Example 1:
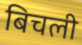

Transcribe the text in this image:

बिचली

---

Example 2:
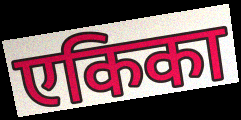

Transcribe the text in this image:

एकिका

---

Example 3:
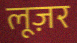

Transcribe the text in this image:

लूज़र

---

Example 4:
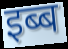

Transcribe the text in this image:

इब्ब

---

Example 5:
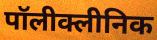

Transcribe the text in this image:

पॉलीक्लीनिक